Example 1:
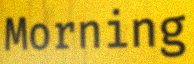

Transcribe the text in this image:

Morning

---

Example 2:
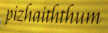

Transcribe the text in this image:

pizhaiththum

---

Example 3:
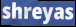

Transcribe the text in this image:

shreyas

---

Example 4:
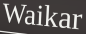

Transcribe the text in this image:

Waikar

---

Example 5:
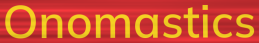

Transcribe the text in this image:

Onomastics